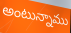
అంటున్నాము